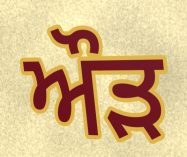
ਔਡ਼